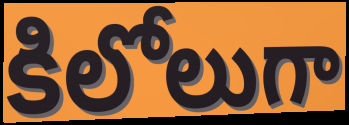
కిలోలుగా